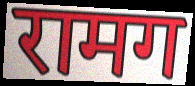
रामग